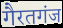
गैरतगंज